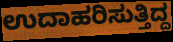
ಉದಾಹರಿಸುತ್ತಿದ್ದ